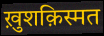
ख़ुशक़िस्मत